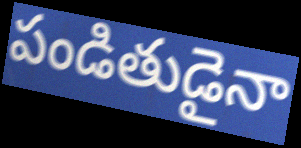
పండితుడైనా